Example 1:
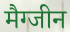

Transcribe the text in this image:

मैग्जीन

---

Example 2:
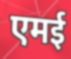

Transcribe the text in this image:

एमई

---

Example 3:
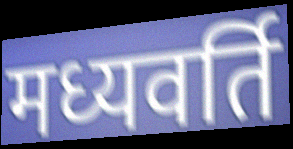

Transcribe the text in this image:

मध्यवर्ति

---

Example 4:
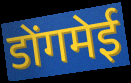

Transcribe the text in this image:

डोंगमेई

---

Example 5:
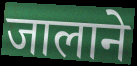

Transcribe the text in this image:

जालाने